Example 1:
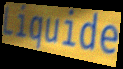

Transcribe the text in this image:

Liquide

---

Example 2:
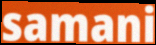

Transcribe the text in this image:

samani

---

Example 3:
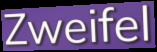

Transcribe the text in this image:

Zweifel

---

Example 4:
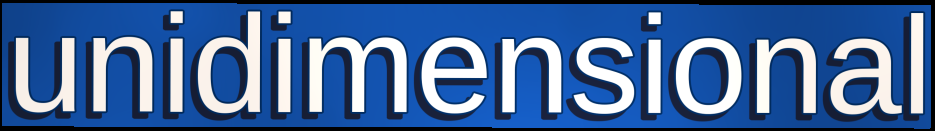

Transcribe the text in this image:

unidimensional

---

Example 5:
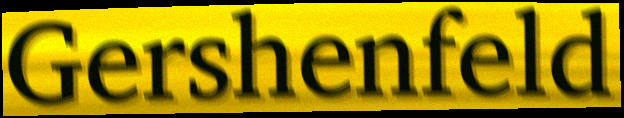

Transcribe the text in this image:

Gershenfeld